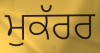
ਮੁਕੱਰਰ